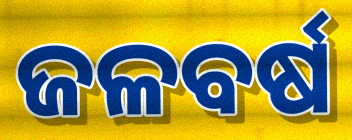
ଜଳବର୍ଷ